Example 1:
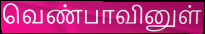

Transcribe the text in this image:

வெண்பாவினுள்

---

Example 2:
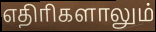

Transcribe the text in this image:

எதிரிகளாலும்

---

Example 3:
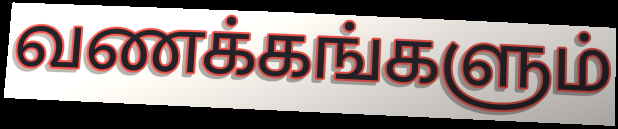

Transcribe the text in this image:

வணக்கங்களும்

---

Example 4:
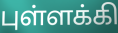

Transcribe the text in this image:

புள்ளக்கி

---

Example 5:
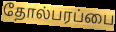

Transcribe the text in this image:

தோல்பரப்பை